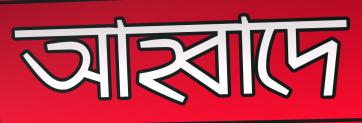
আহ্বাদে